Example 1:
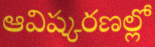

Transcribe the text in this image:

ఆవిష్కరణల్లో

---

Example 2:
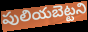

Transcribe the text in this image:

పులియబెట్టని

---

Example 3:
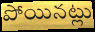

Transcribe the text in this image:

పోయినట్లు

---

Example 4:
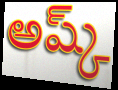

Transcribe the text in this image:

అష్క్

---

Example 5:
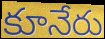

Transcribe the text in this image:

కూనేరు